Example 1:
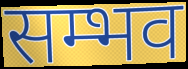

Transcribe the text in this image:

सम्भव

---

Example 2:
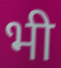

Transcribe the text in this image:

भी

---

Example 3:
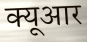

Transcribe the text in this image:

क्यूआर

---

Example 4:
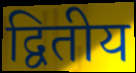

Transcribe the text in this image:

द्वितीय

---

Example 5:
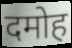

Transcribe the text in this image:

दमोह